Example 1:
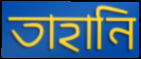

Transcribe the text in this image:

তাহানি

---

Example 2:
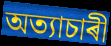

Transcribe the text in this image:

অত্যাচাৰী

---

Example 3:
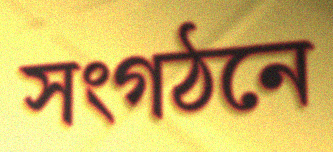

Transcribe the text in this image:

সংগঠনে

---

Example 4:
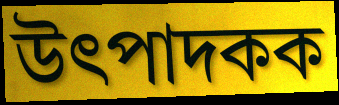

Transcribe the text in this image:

উৎপাদকক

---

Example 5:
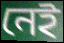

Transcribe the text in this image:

নেই